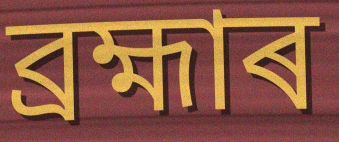
ব্ৰহ্মাৰ